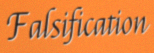
Falsification